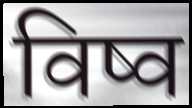
विष्व